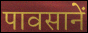
पावसानें